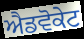
ਐਡਵੋਕੇਟ